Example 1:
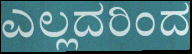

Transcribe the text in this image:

ಎಲ್ಲದರಿಂದ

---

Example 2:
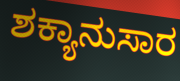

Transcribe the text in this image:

ಶಕ್ಯಾನುಸಾರ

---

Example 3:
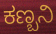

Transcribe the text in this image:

ಕಣ್ಬನಿ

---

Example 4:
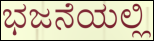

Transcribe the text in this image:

ಭಜನೆಯಲ್ಲಿ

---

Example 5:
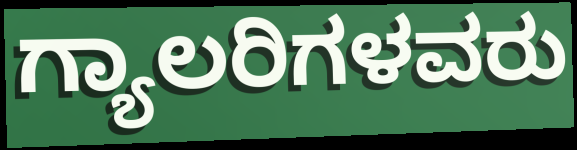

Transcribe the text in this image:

ಗ್ಯಾಲರಿಗಳವರು